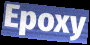
Epoxy